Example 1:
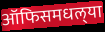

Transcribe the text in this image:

ऑफिसमधल्या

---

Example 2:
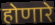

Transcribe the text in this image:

होणारे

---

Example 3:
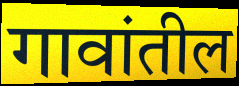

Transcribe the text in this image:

गावांतील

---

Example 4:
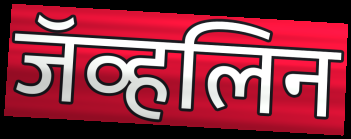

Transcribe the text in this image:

जॅव्हलिन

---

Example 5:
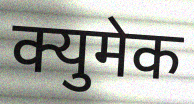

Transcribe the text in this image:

क्युमेक